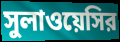
সুলাওয়েসির